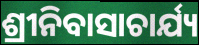
ଶ୍ରୀନିବାସାଚାର୍ଯ୍ୟ